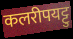
कलरीपयट्टु